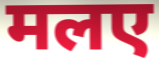
मलए